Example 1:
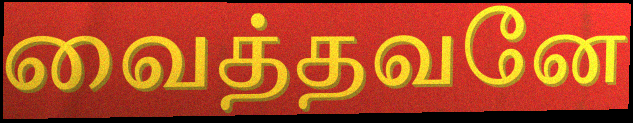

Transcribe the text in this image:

வைத்தவனே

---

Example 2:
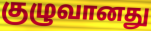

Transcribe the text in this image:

குழுவானது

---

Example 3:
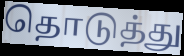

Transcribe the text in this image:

தொடுத்து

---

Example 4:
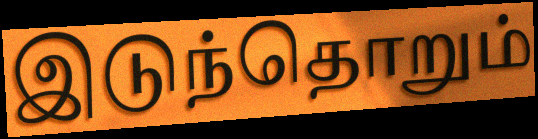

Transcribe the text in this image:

இடுந்தொறும்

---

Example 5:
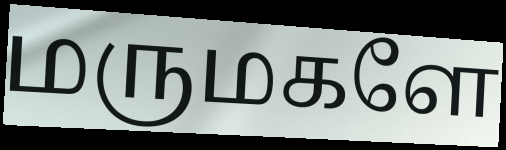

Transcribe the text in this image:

மருமகளே